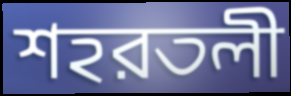
শহরতলী